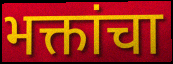
भक्तांचा